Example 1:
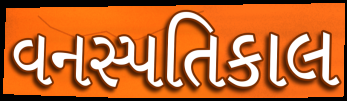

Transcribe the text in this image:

વનસ્પતિકાલ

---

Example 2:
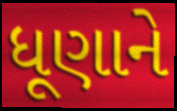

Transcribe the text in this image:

ધૂણાને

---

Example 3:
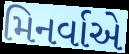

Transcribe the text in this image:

મિનર્વાએ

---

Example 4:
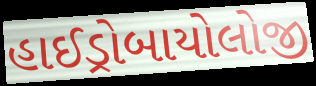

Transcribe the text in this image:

હાઈડ્રોબાયોલોજી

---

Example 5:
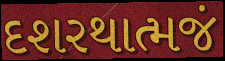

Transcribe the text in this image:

દશરથાત્મજં